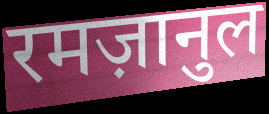
रमज़ानुल